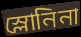
স্লোনিনা